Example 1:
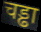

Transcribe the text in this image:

चड्ढा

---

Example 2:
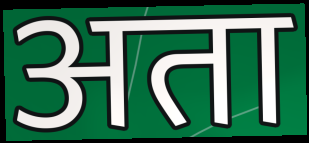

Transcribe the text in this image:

अता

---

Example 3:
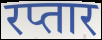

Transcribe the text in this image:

रप्तार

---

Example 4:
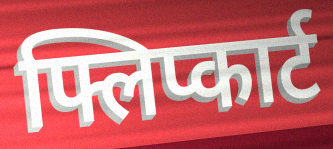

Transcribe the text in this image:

फ्लिप्कार्ट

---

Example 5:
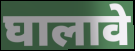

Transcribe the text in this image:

घालावे